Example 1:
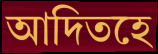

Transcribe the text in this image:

আদিতহে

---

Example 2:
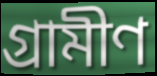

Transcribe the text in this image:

গ্ৰামীণ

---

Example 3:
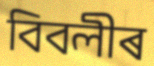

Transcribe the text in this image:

বিবলীৰ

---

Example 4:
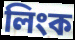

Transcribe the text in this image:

লিংক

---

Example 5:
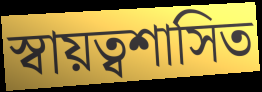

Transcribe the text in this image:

স্বায়ত্বশাসিত